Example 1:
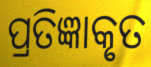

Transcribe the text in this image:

ପ୍ରତିଜ୍ଞାକୃତ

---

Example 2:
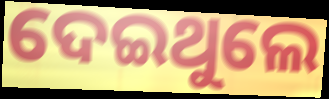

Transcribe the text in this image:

ଦେଇଥୁଲେ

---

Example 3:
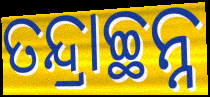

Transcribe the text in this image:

ତନ୍ଦ୍ରାଚ୍ଛନ୍ନ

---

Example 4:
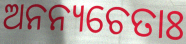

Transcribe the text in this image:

ଅନନ୍ୟଚେତାଃ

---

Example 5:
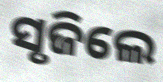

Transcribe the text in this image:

ସୃଜିଲେ